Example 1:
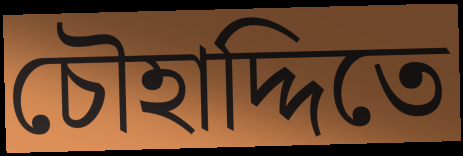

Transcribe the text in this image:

চৌহাদ্দিতে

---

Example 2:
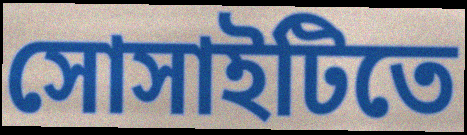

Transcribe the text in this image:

সোসাইটিতে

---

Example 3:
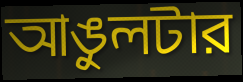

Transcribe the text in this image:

আঙুলটার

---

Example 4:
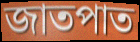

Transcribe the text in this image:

জাতপাত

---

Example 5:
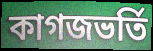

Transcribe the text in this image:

কাগজভর্তি